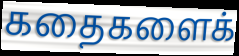
கதைகளைக்